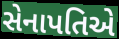
સેનાપતિએ